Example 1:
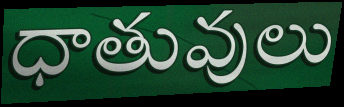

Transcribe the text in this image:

ధాతువులు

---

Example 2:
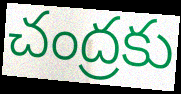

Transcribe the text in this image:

చంద్రకు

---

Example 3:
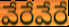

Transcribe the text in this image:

వేరేవేరే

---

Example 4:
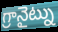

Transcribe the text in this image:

గ్రానైట్ను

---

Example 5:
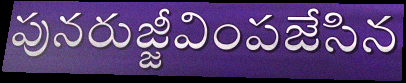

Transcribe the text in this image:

పునరుజ్జీవింపజేసిన